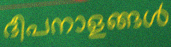
ദീപനാളങ്ങൾ